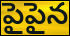
పైపైన